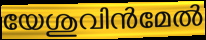
യേശുവിൻമേൽ